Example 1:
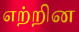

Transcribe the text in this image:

எற்றின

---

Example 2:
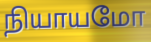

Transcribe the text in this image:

நியாயமோ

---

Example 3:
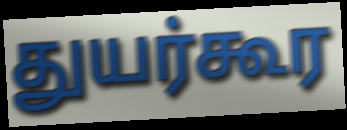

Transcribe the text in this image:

துயர்கூர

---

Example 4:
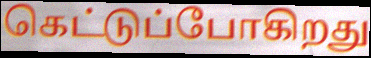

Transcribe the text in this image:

கெட்டுப்போகிறது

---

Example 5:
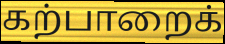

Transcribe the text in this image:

கற்பாறைக்